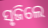
ସୃଜିଲେ